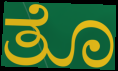
ತೊ